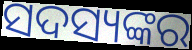
ସଦସ୍ୟଙ୍କର